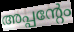
അപ്പന്റേം